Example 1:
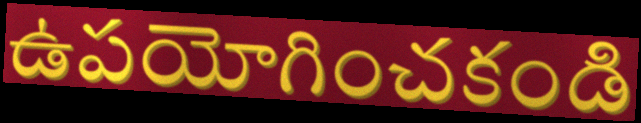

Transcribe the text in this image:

ఉపయోగించకండి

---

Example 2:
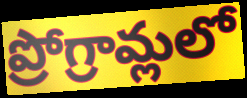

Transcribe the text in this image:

ప్రోగ్రామ్లలో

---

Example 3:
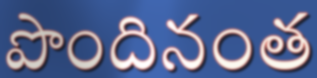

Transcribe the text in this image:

పొందినంత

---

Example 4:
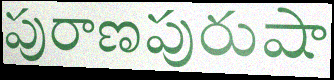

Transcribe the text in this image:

పురాణపురుషా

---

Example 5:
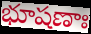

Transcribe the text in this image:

భూషణాః